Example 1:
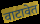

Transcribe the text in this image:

वाटावेत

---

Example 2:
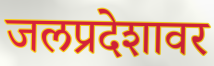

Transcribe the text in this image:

जलप्रदेशावर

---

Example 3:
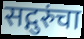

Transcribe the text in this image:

सद्गुरुंचा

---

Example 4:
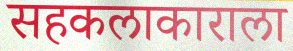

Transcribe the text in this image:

सहकलाकाराला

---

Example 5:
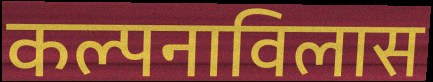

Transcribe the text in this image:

कल्पनाविलास